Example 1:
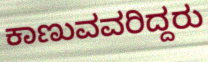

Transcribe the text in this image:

ಕಾಣುವವರಿದ್ದರು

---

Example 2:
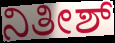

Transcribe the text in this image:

ನಿತೀಶ್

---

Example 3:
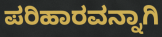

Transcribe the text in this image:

ಪರಿಹಾರವನ್ನಾಗಿ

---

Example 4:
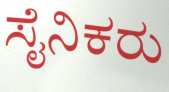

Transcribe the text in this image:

ಸೈನಿಕರು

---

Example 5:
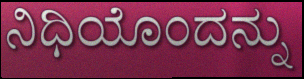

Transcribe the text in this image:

ನಿಧಿಯೊಂದನ್ನು